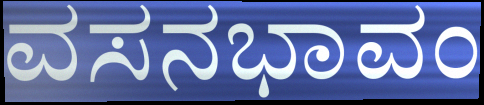
ವಸನಭಾವಂ